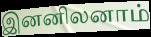
இனனிலனாம்